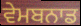
ਵੇਮਬਨਾਡ